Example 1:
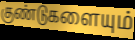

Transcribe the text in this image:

குண்டுகளையும்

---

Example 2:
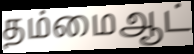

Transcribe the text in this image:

தம்மைஆட்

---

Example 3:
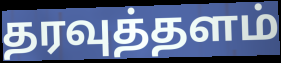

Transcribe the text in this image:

தரவுத்தளம்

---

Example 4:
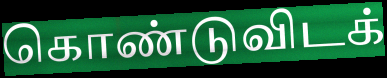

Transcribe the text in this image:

கொண்டுவிடக்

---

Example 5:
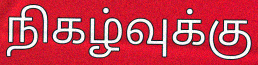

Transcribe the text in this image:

நிகழ்வுக்கு